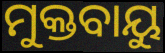
ମୁକ୍ତବାୟୁ